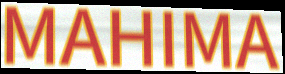
MAHIMA